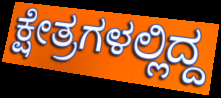
ಕ್ಷೇತ್ರಗಳಲ್ಲಿದ್ದ